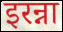
इरन्ना